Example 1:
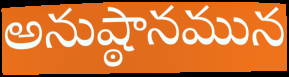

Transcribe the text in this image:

అనుష్ఠానమున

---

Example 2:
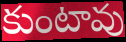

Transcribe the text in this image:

కుంటావు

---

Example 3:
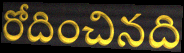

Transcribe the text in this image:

రోదించినది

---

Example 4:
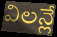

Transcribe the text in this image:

విలన్లే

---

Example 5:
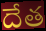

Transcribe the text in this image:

దేత